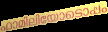
ഫാമിലിയോടൊപ്പം